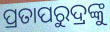
ପ୍ରତାପରୁଦ୍ରଙ୍କୁ